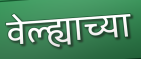
वेल्ह्याच्या